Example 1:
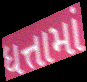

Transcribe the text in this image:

ધત્તામાં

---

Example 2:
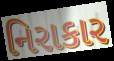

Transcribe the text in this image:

નિરાકાર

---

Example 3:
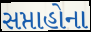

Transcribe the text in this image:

સપ્તાહોના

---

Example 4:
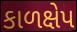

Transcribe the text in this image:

કાળક્ષેપ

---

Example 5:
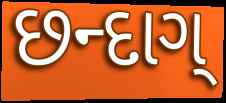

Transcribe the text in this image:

છન્દાગ્